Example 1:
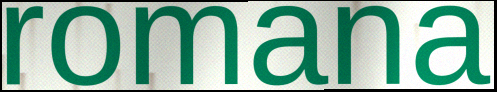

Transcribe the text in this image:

romana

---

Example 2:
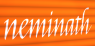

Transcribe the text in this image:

neminath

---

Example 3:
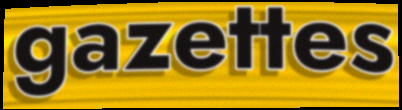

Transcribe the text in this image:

gazettes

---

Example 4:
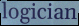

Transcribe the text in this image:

logician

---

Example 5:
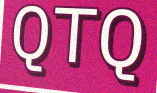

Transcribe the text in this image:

QTQ